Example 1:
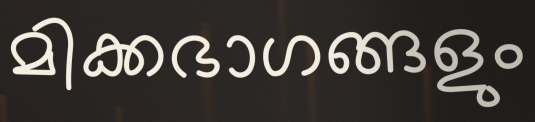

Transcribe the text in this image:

മിക്കഭാഗങ്ങളും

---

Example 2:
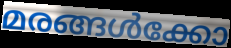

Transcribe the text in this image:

മരങ്ങൾക്കോ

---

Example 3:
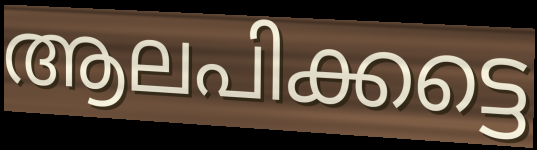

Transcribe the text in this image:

ആലപിക്കട്ടെ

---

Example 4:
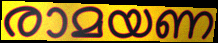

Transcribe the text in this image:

രാമയണ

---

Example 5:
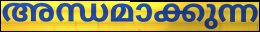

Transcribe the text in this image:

അന്ധമാക്കുന്ന